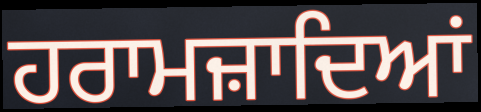
ਹਰਾਮਜ਼ਾਦਿਆਂ